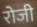
रोजी